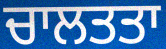
ਚਾਲਤਤਾ